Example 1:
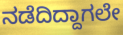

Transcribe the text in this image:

ನಡೆದಿದ್ದಾಗಲೇ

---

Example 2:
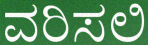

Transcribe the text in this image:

ವರಿಸಲಿ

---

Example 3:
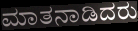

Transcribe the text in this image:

ಮಾತನಾಡಿದರು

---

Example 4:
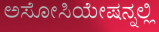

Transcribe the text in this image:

ಅಸೋಸಿಯೇಷನ್ನಲ್ಲಿ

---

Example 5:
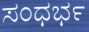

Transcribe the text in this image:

ಸಂಧರ್ಭ